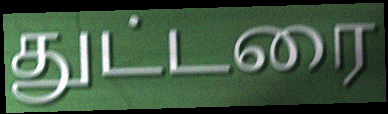
துட்டரை